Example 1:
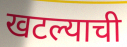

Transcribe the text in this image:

खटल्याची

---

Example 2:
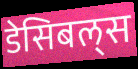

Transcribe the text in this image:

डेसिबल्स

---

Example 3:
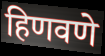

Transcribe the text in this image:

हिणवणे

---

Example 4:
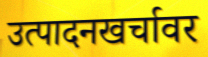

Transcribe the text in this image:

उत्पादनखर्चावर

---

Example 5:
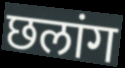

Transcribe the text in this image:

छलांग